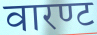
वारण्ट